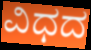
ವಿಧದ